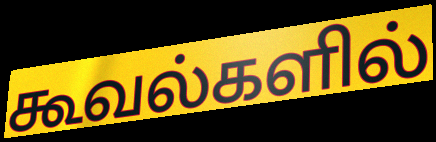
கூவல்களில்